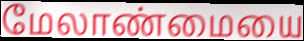
மேலாண்மையை